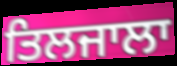
ਤਿਲਜਾਲਾ